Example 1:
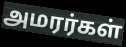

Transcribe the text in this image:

அமரர்கள்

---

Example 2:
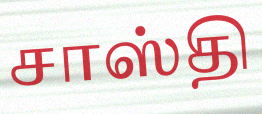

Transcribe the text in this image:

சாஸ்தி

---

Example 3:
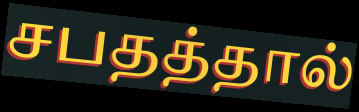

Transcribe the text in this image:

சபதத்தால்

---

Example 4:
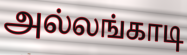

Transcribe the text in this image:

அல்லங்காடி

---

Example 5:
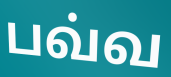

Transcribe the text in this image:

பவ்வ